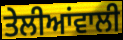
ਤੇਲੀਆਂਵਾਲੀ